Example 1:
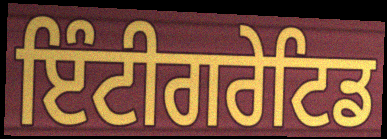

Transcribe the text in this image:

ਇੰਟੀਗਰੇਟਿਡ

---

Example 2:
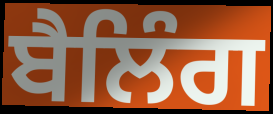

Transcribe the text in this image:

ਬੈਲਿੰਗ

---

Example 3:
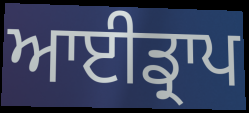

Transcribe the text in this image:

ਆਈਡ੍ਰਾਪ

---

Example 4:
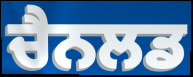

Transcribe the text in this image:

ਚੈਨਲਡ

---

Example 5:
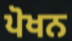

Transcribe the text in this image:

ਪੋਖਨ